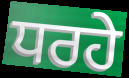
ਧਰਹੇ